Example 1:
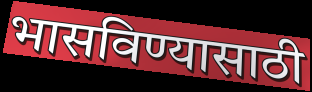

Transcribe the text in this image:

भासविण्यासाठी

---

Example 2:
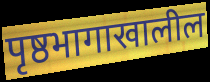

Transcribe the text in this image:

पृष्ठभागाखालील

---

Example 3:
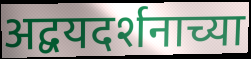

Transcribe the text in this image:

अद्वयदर्शनाच्या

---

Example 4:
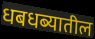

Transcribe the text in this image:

धबधब्यातील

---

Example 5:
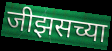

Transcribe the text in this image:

जीझसच्या